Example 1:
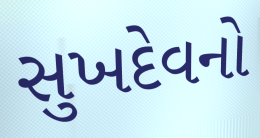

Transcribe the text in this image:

સુખદેવનો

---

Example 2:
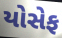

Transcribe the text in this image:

યોસેફ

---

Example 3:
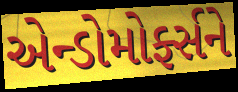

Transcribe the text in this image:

એન્ડોમોર્ફ્સને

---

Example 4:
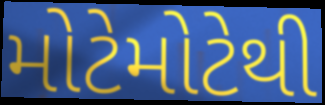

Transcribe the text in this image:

મોટેમોટેથી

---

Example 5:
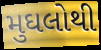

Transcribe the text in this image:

મુઘલોથી